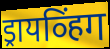
ड्रायव्हिंग